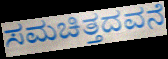
ಸಮಚಿತ್ತದವನೆ